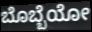
ಬೊಬ್ಬೆಯೋ